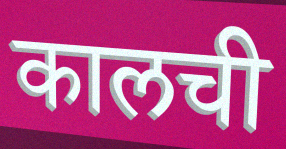
कालची